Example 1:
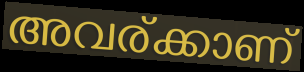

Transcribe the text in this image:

അവര്ക്കാണ്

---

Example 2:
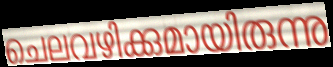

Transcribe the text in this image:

ചെലവഴിക്കുമായിരുന്നു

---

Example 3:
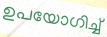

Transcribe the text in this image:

ഉപയോഗിച്ച്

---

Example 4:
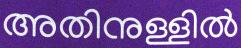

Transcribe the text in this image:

അതിനുള്ളിൽ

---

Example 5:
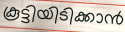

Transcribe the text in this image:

കൂട്ടിയിടിക്കാൻ